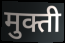
मुक्ती